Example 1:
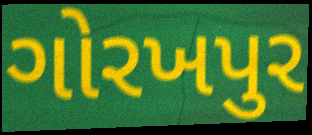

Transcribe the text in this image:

ગોરખપુર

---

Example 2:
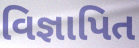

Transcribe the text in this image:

વિજ્ઞાપિત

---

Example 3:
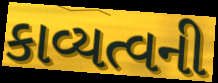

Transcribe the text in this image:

કાવ્યત્વની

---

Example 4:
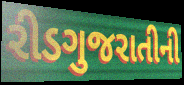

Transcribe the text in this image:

રીડગુજરાતીની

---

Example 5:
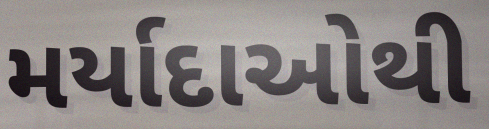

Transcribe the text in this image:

મર્યાદાઓથી